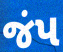
જંપ